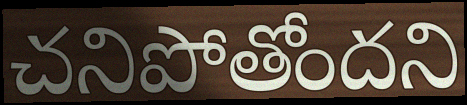
చనిపోతోందని